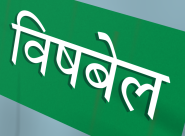
विषबेल